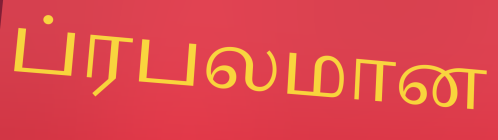
ப்ரபலமான